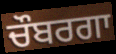
ਚੌਬਰਗਾ